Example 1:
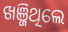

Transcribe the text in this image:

ଖଞ୍ଜିଥିଲେ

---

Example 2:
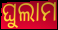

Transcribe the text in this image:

ଘୁଲାମ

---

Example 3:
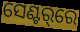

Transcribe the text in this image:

ସେଣ୍ଟର୍‌ରେ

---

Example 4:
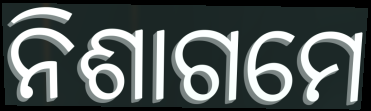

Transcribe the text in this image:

ନିଶାଗମେ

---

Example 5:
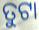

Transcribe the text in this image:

ତୁଟା